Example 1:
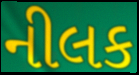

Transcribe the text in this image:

નીલક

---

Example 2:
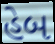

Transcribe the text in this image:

હેબ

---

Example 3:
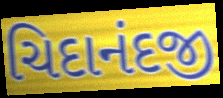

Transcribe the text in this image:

ચિદાનંદજી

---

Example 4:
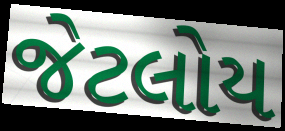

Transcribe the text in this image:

જેટલોય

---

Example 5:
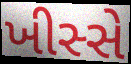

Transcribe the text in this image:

ખીસ્સે